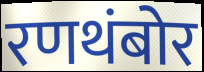
रणथंबोर